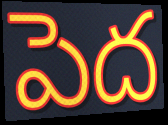
పెద